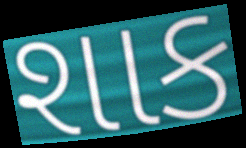
શાક